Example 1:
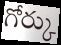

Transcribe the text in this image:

గోర్కు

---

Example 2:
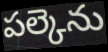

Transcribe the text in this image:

పల్కెను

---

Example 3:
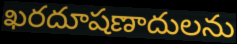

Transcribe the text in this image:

ఖరదూషణాదులను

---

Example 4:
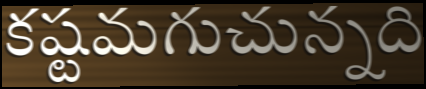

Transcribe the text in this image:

కష్టమగుచున్నది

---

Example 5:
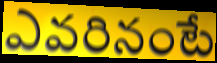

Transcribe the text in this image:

ఎవరినంటే